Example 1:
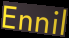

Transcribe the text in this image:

Ennil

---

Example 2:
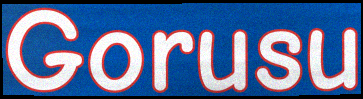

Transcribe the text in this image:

Gorusu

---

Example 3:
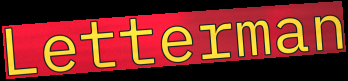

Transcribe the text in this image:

Letterman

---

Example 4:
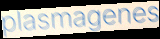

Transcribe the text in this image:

plasmagenes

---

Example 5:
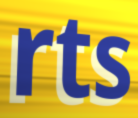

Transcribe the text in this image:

rts